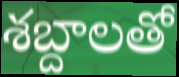
శబ్దాలతో